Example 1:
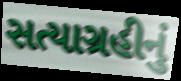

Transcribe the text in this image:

સત્યાગ્રહીનું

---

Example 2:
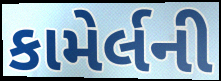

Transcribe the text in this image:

કામેર્લની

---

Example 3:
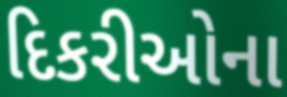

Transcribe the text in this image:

દિકરીઓના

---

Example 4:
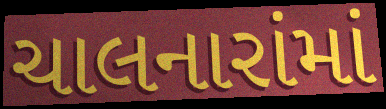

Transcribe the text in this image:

ચાલનારાંમાં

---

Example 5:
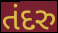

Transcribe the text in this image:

તંદરુ